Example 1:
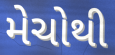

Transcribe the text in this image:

મેચોથી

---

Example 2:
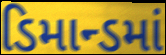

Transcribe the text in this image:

ડિમાન્ડમાં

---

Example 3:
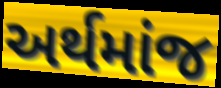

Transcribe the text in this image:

અર્થમાંજ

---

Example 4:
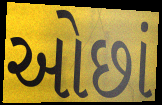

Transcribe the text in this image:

ઓછાં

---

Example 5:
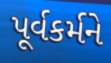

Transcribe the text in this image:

પૂર્વકર્મને